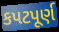
કપટપૂર્ણ